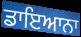
ਡਾਇਆਨਾ